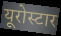
यूरोस्टार